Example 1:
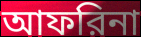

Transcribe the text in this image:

আফরিনা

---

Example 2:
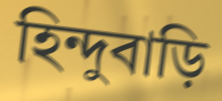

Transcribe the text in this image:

হিন্দুবাড়ি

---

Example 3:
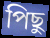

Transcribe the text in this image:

পিছু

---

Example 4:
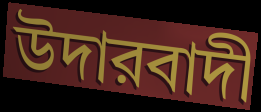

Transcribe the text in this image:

উদারবাদী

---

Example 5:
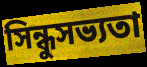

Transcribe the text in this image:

সিন্ধুসভ্যতা